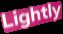
Lightly